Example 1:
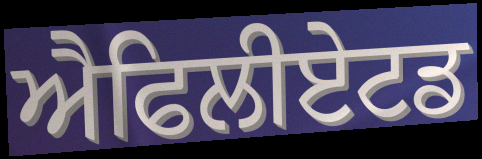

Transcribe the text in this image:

ਐਫਿਲੀਏਟਡ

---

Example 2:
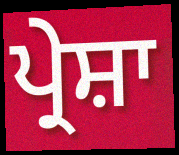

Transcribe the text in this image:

ਪ੍ਰੇਸ਼ਾ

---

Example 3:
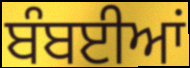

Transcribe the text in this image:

ਬੰਬਈਆਂ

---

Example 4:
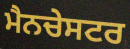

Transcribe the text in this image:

ਮੈਨਚੇਸਟਰ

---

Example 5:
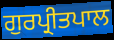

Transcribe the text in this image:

ਗੁਰਪ੍ਰੀਤਪਾਲ